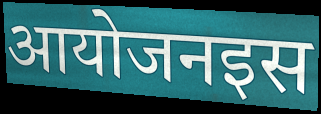
आयोजनइस